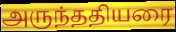
அருந்ததியரை